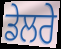
ਡੇਲਰੇ